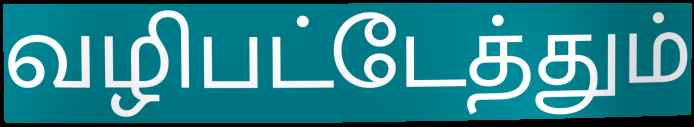
வழிபட்டேத்தும்